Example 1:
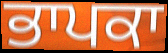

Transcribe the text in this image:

ਭਾਪਕਾ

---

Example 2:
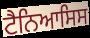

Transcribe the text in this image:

ਟੈਨਿਆਸਿਸ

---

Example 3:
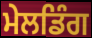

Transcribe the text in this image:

ਮੇਲਡਿੰਗ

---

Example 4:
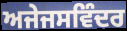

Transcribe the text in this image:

ਅਜੇਜਸਵਿੰਦਰ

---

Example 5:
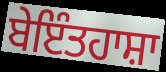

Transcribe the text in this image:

ਬੇਇੰਤਹਾਸ਼ਾ